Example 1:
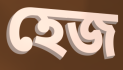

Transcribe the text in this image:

হেজ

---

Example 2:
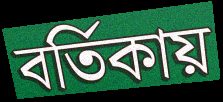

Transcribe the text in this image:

বর্তিকায়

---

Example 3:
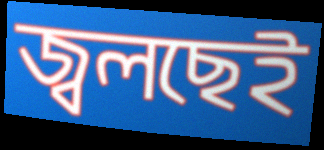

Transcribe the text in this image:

জ্বলছেই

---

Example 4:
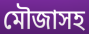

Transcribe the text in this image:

মৌজাসহ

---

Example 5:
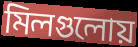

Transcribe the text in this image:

মিলগুলোয়